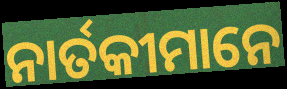
ନାର୍ତକୀମାନେ